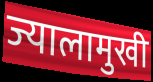
ज्यालामुखी